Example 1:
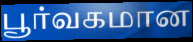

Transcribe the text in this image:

பூர்வகமான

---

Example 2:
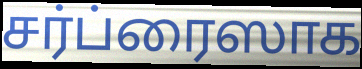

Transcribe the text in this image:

சர்ப்ரைஸாக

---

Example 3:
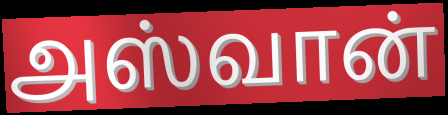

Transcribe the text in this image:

அஸ்வான்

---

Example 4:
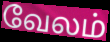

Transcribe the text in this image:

வேலம்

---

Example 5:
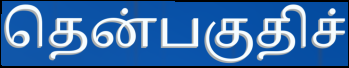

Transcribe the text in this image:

தென்பகுதிச்